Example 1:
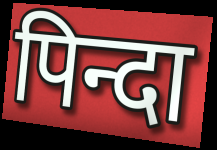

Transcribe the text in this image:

पिन्दा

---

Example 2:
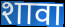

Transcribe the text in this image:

शावा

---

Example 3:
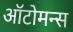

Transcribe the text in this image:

ऑटोमन्स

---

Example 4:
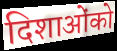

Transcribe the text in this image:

दिशाओंको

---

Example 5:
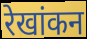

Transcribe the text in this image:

रेखांकन